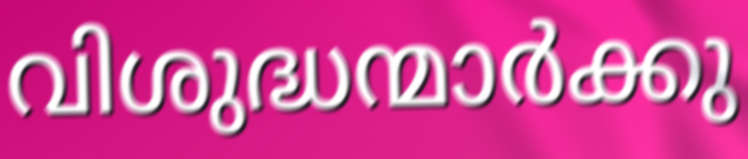
വിശുദ്ധന്മാർക്കു